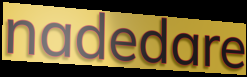
nadedare